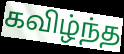
கவிழ்ந்த